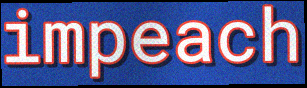
impeach